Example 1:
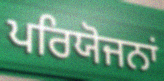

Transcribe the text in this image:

ਪਰਿਯੋਜਨਾਂ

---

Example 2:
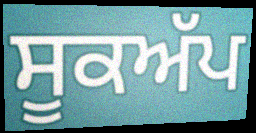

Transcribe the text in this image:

ਸੂਕਅੱਪ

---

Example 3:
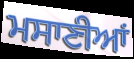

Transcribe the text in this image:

ਮਸਾਣੀਆਂ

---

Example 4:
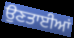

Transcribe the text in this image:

ਉਣਤਾਈਆਂ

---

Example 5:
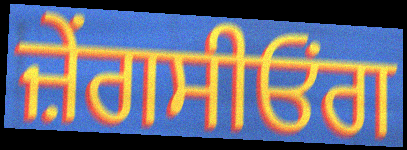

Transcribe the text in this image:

ਜ਼ੇਂਗਸੀਓਂਗ